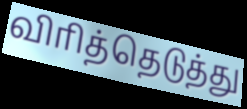
விரித்தெடுத்து